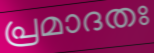
പ്രമാദതഃ